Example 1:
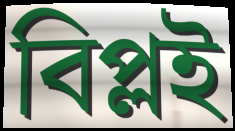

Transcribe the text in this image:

বিপ্লই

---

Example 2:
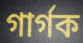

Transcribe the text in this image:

গাৰ্গক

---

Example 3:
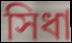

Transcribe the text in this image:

সিধা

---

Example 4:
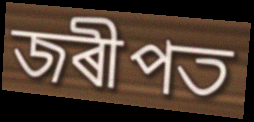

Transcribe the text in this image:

জৰীপত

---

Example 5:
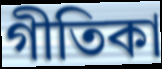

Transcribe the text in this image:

গীতিকা